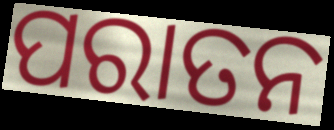
ପରାତନ